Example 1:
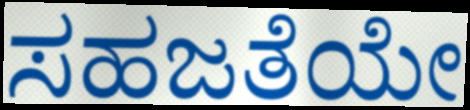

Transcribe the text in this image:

ಸಹಜತೆಯೇ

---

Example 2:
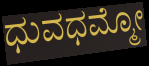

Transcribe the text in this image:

ಧುವಧಮ್ಮೋ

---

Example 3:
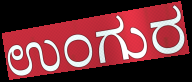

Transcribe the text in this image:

ಉಂಗುರ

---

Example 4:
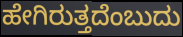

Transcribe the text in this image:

ಹೇಗಿರುತ್ತದೆಂಬುದು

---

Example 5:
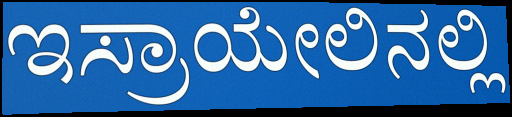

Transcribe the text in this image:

ಇಸ್ರಾಯೇಲಿನಲ್ಲಿ